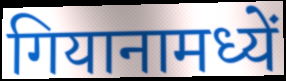
गियानामध्यें